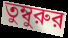
তুম্বুরুর